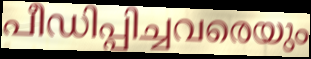
പീഡിപ്പിച്ചവരെയും